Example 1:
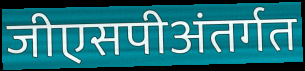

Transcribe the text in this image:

जीएसपीअंतर्गत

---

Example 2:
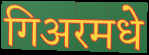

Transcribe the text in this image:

गिअरमधे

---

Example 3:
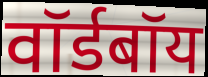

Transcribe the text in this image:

वॉर्डबॉय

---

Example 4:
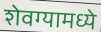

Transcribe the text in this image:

शेवग्यामध्ये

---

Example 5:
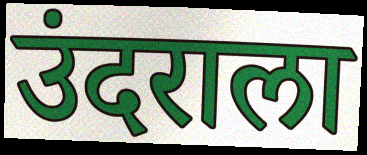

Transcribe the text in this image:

उंदराला